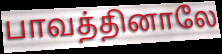
பாவத்தினாலே